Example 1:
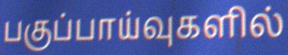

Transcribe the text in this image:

பகுப்பாய்வுகளில்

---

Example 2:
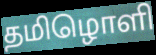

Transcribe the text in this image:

தமிழொளி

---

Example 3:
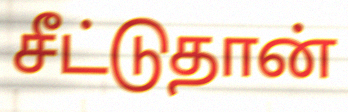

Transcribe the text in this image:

சீட்டுதான்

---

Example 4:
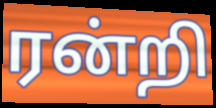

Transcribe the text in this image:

ரன்றி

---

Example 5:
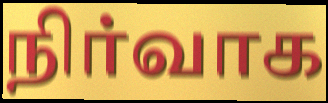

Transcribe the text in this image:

நிர்வாக